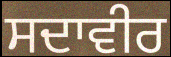
ਸਦਾਵੀਰ